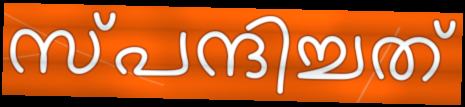
സ്പന്ദിച്ചത്